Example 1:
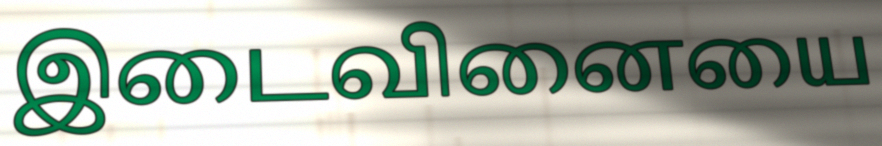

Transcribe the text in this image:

இடைவினையை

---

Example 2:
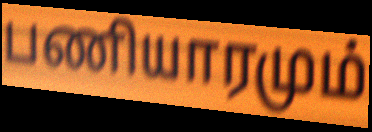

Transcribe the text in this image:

பணியாரமும்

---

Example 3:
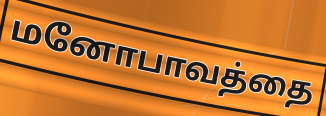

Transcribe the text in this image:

மனோபாவத்தை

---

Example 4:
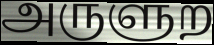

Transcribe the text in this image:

அருளுற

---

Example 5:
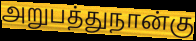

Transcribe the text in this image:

அறுபத்துநான்கு